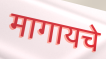
मागायचे